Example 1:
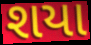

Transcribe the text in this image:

શયા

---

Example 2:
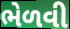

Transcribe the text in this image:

ભેળવી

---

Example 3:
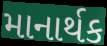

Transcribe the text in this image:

માનાર્થક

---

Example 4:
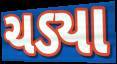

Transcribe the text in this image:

ચડ્યા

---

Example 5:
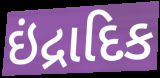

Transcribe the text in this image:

ઇંદ્રાદિક